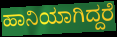
ಹಾನಿಯಾಗಿದ್ದರೆ